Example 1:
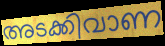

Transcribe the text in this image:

അടക്കിവാണ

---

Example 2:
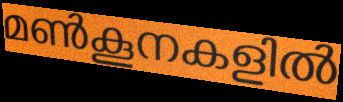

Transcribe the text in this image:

മൺകൂനകളിൽ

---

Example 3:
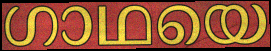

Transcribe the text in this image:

ഗാഥയെ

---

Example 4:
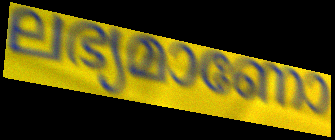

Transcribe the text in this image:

ലഭ്യമാണോ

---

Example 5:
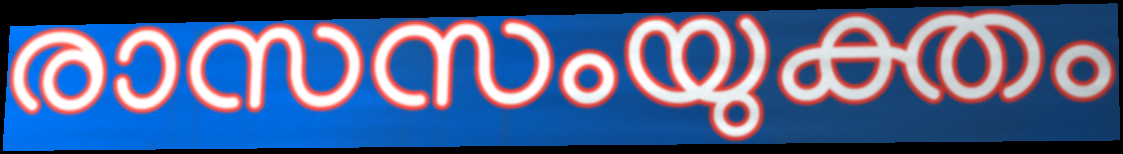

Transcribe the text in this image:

രാസസംയുക്തം